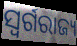
ସ୍ୱର୍ଗରାଜ୍ୟ